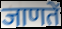
जाणतें